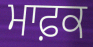
ਮਾਫ਼ਕ